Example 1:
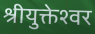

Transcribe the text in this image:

श्रीयुक्तेश्वर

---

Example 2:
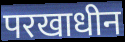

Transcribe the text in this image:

परखाधीन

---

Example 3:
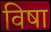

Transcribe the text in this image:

विषा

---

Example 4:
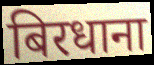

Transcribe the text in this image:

बिरधाना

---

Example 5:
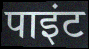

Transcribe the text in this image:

पाइंट